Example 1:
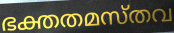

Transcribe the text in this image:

ഭക്തതമസ്തവ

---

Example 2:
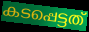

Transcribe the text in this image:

കടപ്പെട്ടത്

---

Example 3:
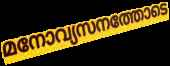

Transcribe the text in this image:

മനോവ്യസനത്തോടെ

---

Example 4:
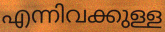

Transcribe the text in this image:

എന്നിവക്കുള്ള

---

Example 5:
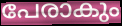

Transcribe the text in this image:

പേരാകും